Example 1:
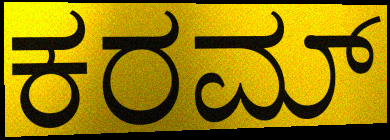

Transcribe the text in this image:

ಕರಮ್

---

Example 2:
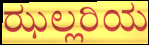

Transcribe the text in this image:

ಝಲ್ಲರಿಯ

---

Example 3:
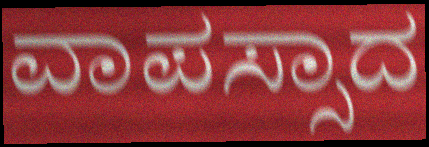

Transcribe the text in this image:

ವಾಪಸ್ಸಾದ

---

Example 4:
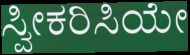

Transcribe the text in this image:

ಸ್ವೀಕರಿಸಿಯೇ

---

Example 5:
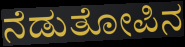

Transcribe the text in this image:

ನೆಡುತೋಪಿನ